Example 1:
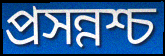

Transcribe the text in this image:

প্রসন্নশ্চ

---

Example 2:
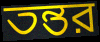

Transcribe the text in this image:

তন্তর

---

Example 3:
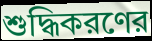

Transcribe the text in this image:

শুদ্ধিকরণের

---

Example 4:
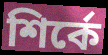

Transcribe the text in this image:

শির্কে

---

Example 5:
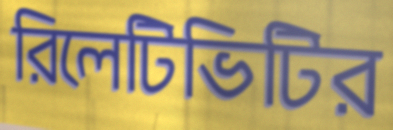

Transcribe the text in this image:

রিলেটিভিটির